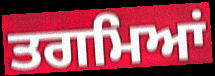
ਤਗਮਿਆਂ